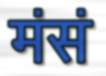
मंसं